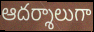
ఆదర్శాలుగా